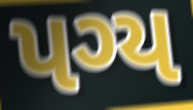
પગ્ય